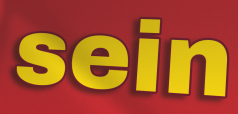
sein